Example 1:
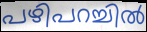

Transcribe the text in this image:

പഴിപറച്ചിൽ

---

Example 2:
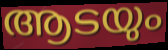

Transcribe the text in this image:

ആടയും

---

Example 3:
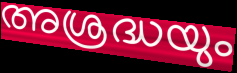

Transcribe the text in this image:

അശ്രദ്ധയും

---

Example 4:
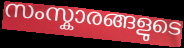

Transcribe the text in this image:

സംസ്കാരങ്ങളുടെ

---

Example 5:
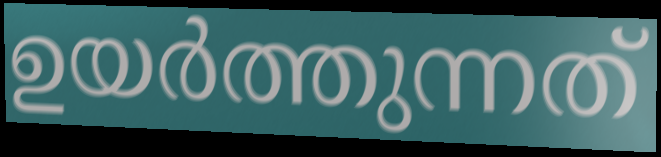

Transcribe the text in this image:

ഉയർത്തുന്നത്